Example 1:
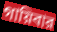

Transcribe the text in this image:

গায়িবার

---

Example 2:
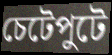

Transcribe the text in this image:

চেটেপুটে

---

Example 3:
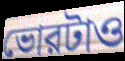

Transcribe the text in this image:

ভোরটাও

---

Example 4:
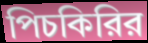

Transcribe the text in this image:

পিচকিরির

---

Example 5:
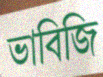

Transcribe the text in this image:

ভাবিজি